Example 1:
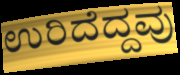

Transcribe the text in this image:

ಉರಿದೆದ್ದವು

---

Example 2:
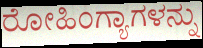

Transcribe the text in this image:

ರೋಹಿಂಗ್ಯಾಗಳನ್ನು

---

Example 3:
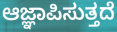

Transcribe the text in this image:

ಆಜ್ಞಾಪಿಸುತ್ತದೆ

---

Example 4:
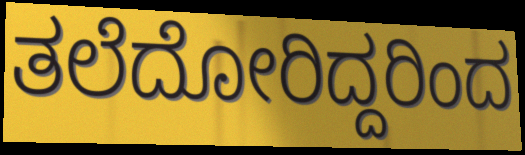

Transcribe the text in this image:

ತಲೆದೋರಿದ್ದರಿಂದ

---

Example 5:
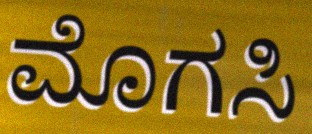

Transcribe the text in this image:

ಮೊಗಸಿ